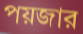
পয়জার